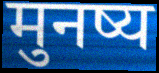
मुनष्य